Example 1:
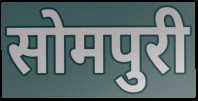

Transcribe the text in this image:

सोमपुरी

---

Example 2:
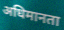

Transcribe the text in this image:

अधिमानता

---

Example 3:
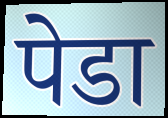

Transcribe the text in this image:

पेडा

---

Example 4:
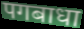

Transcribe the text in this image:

पगबाधा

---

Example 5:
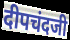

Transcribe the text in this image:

दीपचंदजी